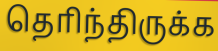
தெரிந்திருக்க